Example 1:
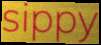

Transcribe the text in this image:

sippy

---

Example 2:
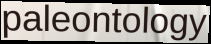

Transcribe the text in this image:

paleontology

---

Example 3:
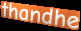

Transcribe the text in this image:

thandhe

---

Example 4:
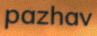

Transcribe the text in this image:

pazhav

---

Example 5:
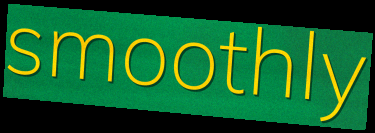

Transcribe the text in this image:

smoothly